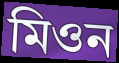
মিওন